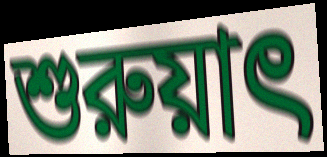
শুরুয়াৎ